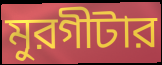
মুরগীটার